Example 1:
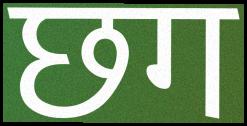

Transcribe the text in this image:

छग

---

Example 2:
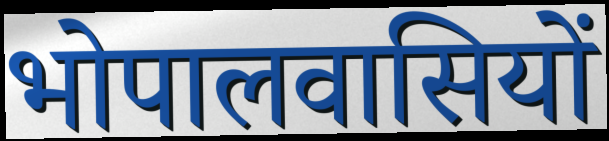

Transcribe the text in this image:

भोपालवासियों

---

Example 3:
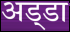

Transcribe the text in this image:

अड्‌डा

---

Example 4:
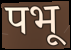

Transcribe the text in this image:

पभू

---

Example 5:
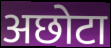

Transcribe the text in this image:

अछोटा